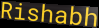
Rishabh